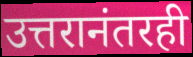
उत्तरानंतरही